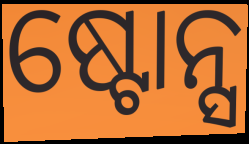
ଷ୍ଟୋନ୍ସ